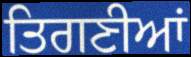
ਤਿਗਣੀਆਂ